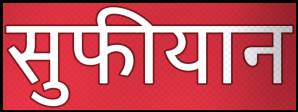
सुफीयान